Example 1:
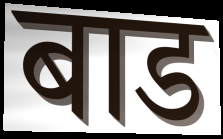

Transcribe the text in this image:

बाड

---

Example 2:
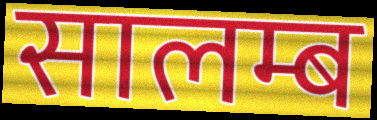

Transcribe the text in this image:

सालम्ब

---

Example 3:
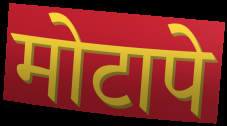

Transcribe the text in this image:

मोटापे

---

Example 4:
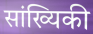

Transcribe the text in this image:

सांख्यिकी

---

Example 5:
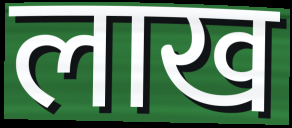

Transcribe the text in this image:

लाख